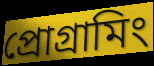
প্ৰোগ্ৰামিং